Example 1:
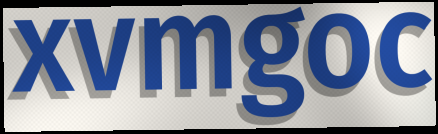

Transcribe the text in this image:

xvmgoc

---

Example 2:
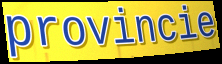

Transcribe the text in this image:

provincie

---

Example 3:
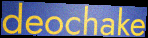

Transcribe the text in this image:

deochake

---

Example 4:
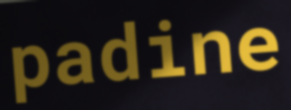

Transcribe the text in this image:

padine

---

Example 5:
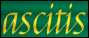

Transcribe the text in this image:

ascitis